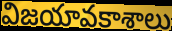
విజయావకాశాలు